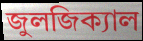
জুলজিক্যাল